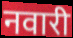
नवारी